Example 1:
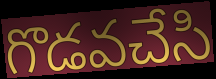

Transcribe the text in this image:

గొడవచేసి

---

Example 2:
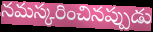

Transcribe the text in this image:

నమస్కరించినప్పుడు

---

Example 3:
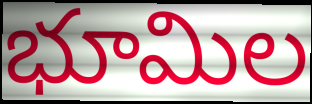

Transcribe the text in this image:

భూమిల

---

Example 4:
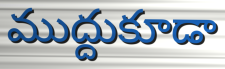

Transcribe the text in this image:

ముద్దుకూడా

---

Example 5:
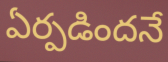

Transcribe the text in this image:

ఏర్పడిందనే